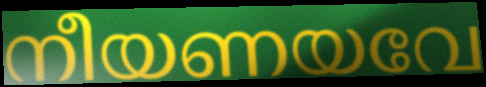
നീയണയവേ